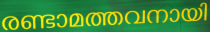
രണ്ടാമത്തവനായി